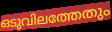
ഒടുവിലത്തേതും